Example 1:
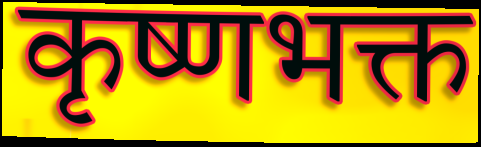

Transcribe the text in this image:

कृष्णभक्त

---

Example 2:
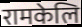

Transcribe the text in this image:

रामकेलि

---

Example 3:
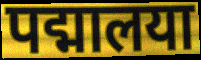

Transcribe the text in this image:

पद्मालया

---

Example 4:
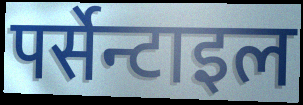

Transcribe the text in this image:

पर्सेन्टाइल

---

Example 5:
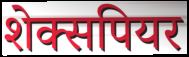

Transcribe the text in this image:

शेक्सपियर